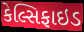
કેલ્સિફાઇડ